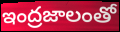
ఇంద్రజాలంతో